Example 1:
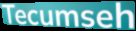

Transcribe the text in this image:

Tecumseh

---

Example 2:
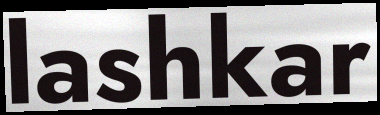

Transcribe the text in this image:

lashkar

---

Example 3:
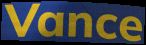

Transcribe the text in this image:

Vance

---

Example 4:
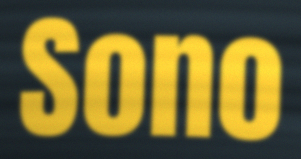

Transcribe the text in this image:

Sono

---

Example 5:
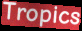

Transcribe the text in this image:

Tropics